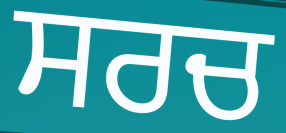
ਸਰਚ